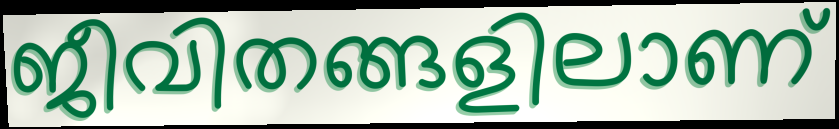
ജീവിതങ്ങളിലാണ്